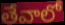
తేవాలో